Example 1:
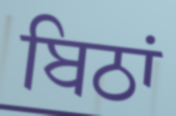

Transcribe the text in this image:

ਬਿਠਾਂ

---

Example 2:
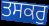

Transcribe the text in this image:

ਤਸਕਰੁ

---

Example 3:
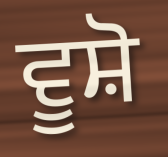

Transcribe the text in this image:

ਵੂਸ਼ੋ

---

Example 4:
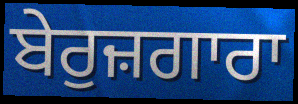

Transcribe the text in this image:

ਬੇਰੁਜ਼ਗਾਰਾ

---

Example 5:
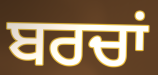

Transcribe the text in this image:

ਬਰਚਾਂ